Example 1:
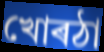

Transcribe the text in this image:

খোৰঠা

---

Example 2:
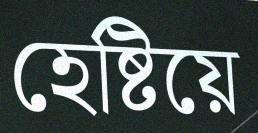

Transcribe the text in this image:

হেষ্টিয়ে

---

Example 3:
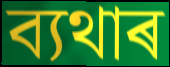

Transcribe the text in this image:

ব্যথাৰ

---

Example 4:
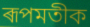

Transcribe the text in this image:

ৰূপমতীক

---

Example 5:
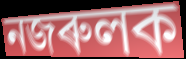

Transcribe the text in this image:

নজৰুলক